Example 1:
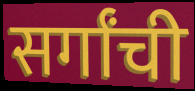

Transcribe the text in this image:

सर्गांची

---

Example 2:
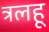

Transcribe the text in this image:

त्रलहू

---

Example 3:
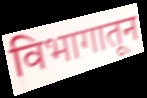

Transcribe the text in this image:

विभागातून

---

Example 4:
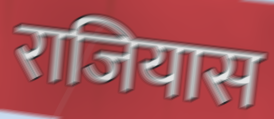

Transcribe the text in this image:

राजियास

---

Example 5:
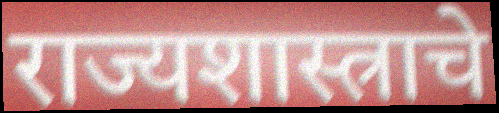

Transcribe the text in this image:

राज्यशास्त्राचे